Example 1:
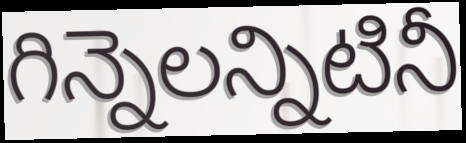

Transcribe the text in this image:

గిన్నెలన్నిటినీ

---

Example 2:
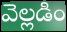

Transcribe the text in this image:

వెల్లడిం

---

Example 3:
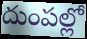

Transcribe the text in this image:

దుంపల్లో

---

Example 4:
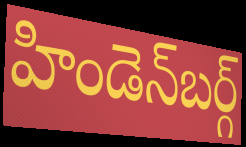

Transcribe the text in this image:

హిండెన్‌బర్గ్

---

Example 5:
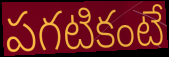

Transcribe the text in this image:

పగటికంటే